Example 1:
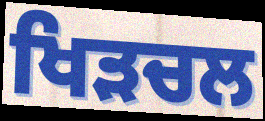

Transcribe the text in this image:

ਖਿੜਚਲ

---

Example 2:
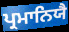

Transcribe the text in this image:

ਪ੍ਰਮਾਨਿਯੈ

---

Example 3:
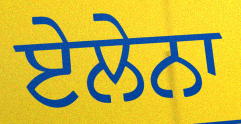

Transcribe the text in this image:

ਏਲੇਨਾ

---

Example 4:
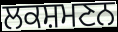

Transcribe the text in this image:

ਲਕਸ਼ਮਣਨ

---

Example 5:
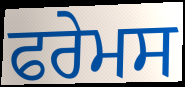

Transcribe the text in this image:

ਫਰੇਮਸ